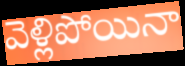
వెళ్లిపోయినా